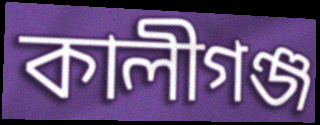
কালীগঞ্জ